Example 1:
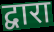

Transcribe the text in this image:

द्वारा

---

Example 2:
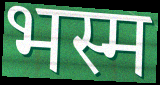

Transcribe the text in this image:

भस्म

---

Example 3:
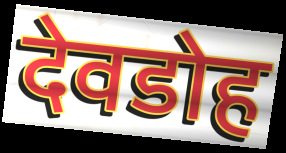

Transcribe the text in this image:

देवडोह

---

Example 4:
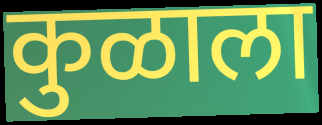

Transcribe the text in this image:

कुळाला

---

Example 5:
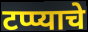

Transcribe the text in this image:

टप्प्याचे